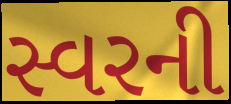
સ્વરની